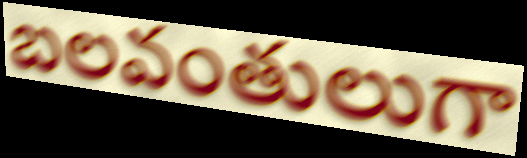
బలవంతులుగా